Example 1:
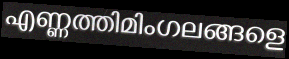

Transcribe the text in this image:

എണ്ണത്തിമിംഗലങ്ങളെ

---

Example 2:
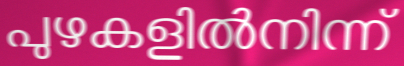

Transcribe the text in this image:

പുഴകളിൽനിന്ന്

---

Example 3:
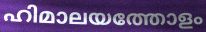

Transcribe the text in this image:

ഹിമാലയത്തോളം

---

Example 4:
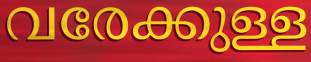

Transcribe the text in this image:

വരേക്കുള്ള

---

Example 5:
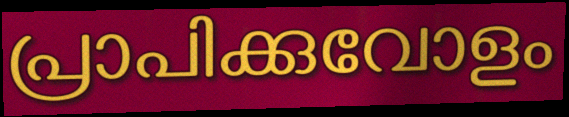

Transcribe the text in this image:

പ്രാപിക്കുവോളം